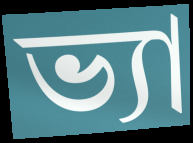
ভ্যা